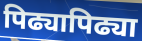
पिढ्यापिढ्या